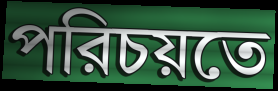
পরিচয়তে